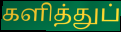
களித்துப்